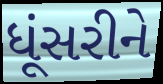
ધૂંસરીને